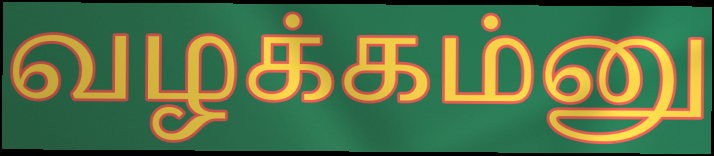
வழக்கம்னு